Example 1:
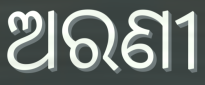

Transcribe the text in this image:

ଅରଣୀ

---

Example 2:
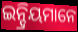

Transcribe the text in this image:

ଇନ୍ଦ୍ରିୟମାନେ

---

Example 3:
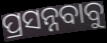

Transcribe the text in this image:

ପ୍ରସନ୍ନବାବୁ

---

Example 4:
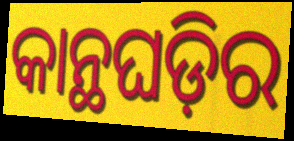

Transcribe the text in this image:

କାନ୍ଥଘଡ଼ିର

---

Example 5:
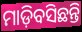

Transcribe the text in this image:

ମାଡ଼ିବସିଛନ୍ତି